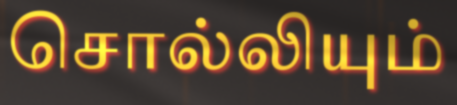
சொல்லியும்